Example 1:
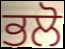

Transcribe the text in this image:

ਭਲੋ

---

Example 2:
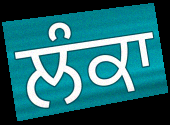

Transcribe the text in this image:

ਲੰਕਾ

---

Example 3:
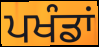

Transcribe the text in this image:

ਪਖੰਡਾਂ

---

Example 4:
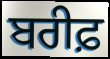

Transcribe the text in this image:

ਬਰੀਫ਼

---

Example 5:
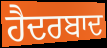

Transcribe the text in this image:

ਹੈਦਰਬਾਦ